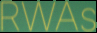
RWAs